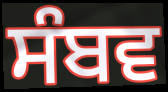
ਸੰਬਵ